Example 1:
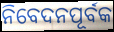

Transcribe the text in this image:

ନିବେଦନପୂର୍ବକ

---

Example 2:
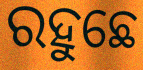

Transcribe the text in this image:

ରହୁଛେ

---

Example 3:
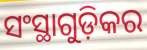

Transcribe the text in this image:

ସଂସ୍ଥାଗୁଡ଼ିକର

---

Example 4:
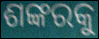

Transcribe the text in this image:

ଶଙ୍କରକୁ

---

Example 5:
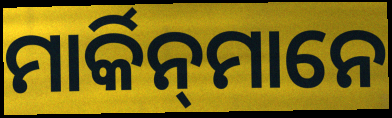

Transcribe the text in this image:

ମାର୍କିନ୍‌ମାନେ